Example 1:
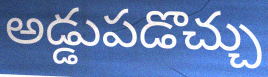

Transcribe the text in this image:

అడ్డుపడొచ్చు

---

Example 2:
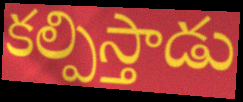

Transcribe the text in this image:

కల్పిస్తాడు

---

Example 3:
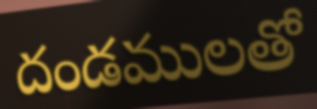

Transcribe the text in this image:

దండములతో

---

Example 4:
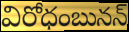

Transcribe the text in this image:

విరోధంబునన్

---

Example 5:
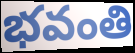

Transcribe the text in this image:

భవంతి